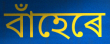
বাঁহেৰে